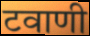
टवाणी